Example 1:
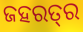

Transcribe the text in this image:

ଜହରତ୍‌ର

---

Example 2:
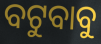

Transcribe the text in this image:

ବଟୁବାବୁ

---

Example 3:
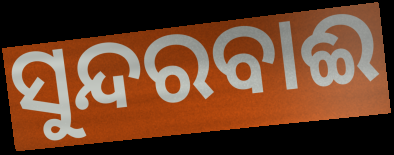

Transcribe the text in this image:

ସୁନ୍ଦରବାଈ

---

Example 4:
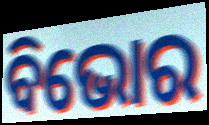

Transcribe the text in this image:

ବିଭୋର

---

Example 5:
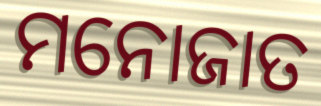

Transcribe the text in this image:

ମନୋଜାତ